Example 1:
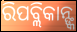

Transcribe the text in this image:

ରିପବ୍ଲିକାନ୍ଙ୍କ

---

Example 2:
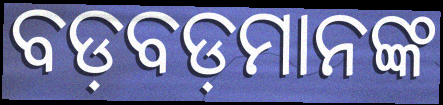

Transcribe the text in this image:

ବଡ଼ବଡ଼ମାନଙ୍କ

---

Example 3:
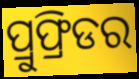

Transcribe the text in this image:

ପ୍ରୁଫ୍ରିଡର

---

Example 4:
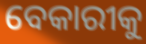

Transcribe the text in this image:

ବେକାରୀକୁ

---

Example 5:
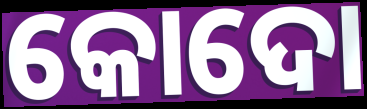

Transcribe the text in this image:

କୋଦୋ